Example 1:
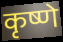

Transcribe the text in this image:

कृष्णे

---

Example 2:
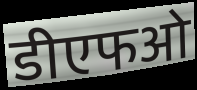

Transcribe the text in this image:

डीएफओ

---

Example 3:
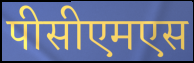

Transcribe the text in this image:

पीसीएमएस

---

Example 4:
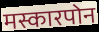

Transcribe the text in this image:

मस्कारपोन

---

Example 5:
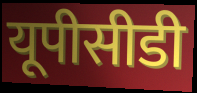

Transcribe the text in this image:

यूपीसीडी